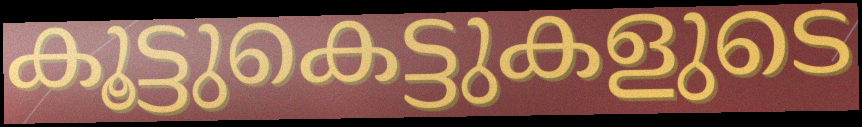
കൂട്ടുകെട്ടുകളുടെ